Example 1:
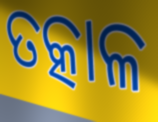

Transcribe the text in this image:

ତତ୍କାଳ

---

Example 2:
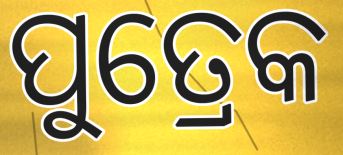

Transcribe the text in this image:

ପୁତ୍ରେକ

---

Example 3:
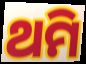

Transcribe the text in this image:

ଥମି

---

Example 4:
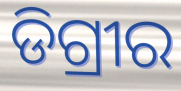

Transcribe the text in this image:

ଡିଗ୍ରୀର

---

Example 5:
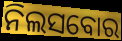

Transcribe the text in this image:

ନିଲସବୋର